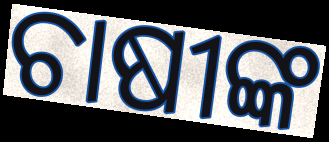
ଚାଷୀଙ୍କ